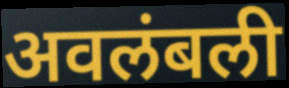
अवलंबली